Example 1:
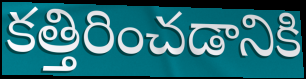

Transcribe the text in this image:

కత్తిరించడానికి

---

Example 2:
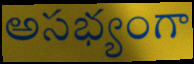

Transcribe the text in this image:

అసభ్యంగా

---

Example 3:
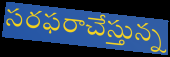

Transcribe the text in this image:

సరఫరాచేస్తున్న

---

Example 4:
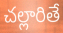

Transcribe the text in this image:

చల్లారితే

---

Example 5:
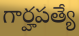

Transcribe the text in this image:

గార్హపత్యే